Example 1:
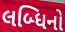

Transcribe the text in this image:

લબ્ધિનો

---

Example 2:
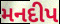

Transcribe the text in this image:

મનદીપ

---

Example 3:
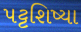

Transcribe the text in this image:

પટ્ટશિષ્યા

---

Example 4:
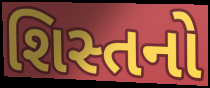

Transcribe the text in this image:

શિસ્તનો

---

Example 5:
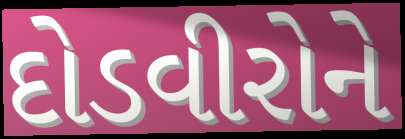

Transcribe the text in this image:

દોડવીરોને